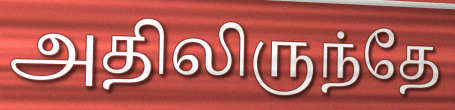
அதிலிருந்தே